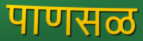
पाणसळ